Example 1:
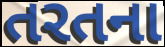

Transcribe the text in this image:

તરતના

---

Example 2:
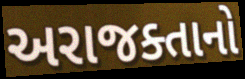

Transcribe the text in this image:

અરાજક્તાનો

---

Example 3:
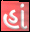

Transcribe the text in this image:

હાં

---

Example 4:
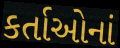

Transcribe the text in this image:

કર્તાઓનાં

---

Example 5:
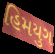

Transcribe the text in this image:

હિમયુગ